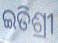
ଇତିଶ୍ରୀ